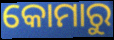
କୋମାରୁ